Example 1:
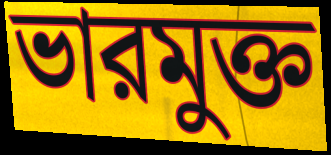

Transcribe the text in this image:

ভারমুক্ত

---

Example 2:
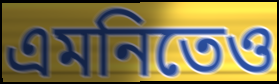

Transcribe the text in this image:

এমনিতেও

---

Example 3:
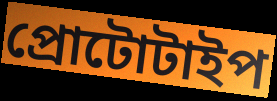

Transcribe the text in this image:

প্রোটোটাইপ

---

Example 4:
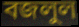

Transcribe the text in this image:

বজলুল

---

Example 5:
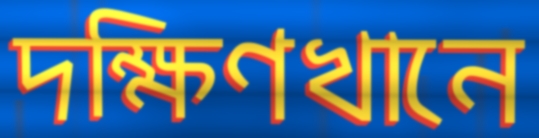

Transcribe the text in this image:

দক্ষিণখানে